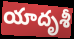
యాదృశీ